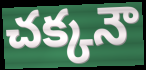
చక్కనౌ